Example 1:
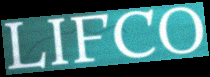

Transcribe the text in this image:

LIFCO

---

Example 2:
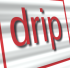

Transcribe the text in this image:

drip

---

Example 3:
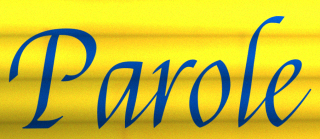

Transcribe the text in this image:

Parole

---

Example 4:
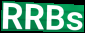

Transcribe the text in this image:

RRBs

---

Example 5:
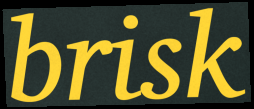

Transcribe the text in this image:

brisk